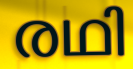
രഥി